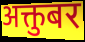
अक्तुबर